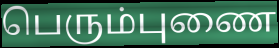
பெரும்புணை